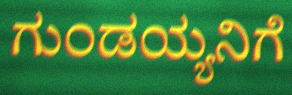
ಗುಂಡಯ್ಯನಿಗೆ